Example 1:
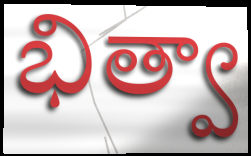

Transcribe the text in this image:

భిత్వా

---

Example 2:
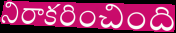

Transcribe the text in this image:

నిరాకరించింది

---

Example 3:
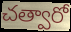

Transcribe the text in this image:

చత్వారో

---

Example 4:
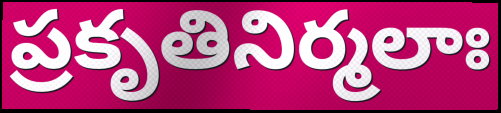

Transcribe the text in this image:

ప్రకృతినిర్మలాః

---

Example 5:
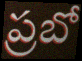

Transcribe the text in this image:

ప్రబో